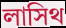
লাসিথ